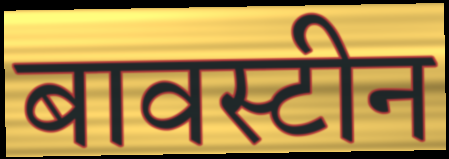
बावस्टीन